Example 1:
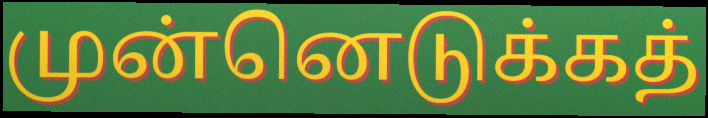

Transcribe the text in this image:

முன்னெடுக்கத்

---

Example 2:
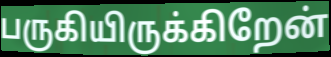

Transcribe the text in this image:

பருகியிருக்கிறேன்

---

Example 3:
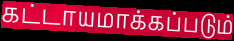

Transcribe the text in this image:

கட்டாயமாக்கப்படும்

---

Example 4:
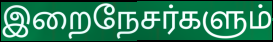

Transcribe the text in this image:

இறைநேசர்களும்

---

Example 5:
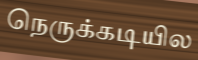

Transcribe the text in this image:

நெருக்கடியில